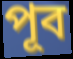
পূব